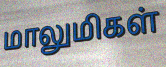
மாலுமிகள்